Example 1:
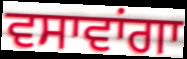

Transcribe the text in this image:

ਵਸਾਵਾਂਗਾ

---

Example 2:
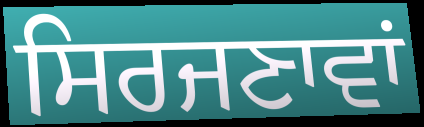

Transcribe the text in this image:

ਸਿਰਜਣਾਵਾਂ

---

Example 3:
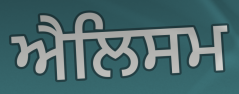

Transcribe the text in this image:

ਐਲਿਸਮ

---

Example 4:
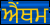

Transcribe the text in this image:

ਐਂਥਮ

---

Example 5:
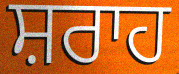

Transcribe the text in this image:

ਸ਼ਰਾਹ